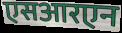
एसआरएन